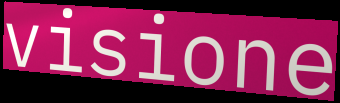
visione